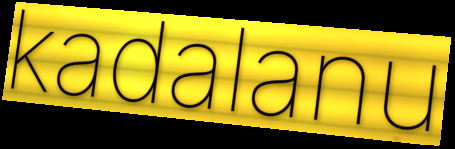
kadalanu